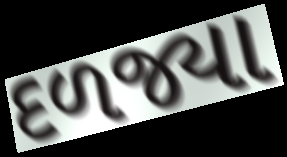
દળજ્યા